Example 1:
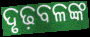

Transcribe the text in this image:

ଦୃଢ଼ବଳଙ୍କ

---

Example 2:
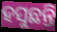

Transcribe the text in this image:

ହସୁଛନ୍ତି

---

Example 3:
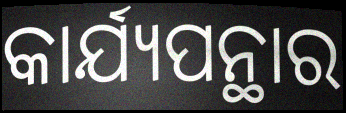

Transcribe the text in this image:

କାର୍ଯ୍ୟପନ୍ଥାର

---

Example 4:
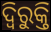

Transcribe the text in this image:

ଦ୍ୱିରୁକ୍ତି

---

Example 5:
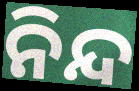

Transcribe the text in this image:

ନିନ୍ଦ